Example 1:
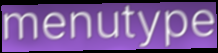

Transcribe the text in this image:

menutype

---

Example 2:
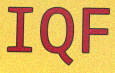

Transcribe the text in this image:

IQF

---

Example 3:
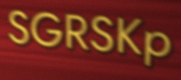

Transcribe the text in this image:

SGRSKp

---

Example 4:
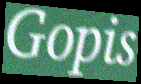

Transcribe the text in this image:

Gopis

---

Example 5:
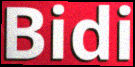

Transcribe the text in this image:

Bidi